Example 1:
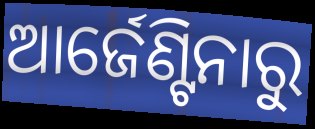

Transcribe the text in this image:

ଆର୍ଜେଣ୍ଟିନାରୁ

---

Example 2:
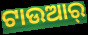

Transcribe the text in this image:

ଟାଉଆର୍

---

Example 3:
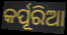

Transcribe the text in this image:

କର୍ପୂରିଆ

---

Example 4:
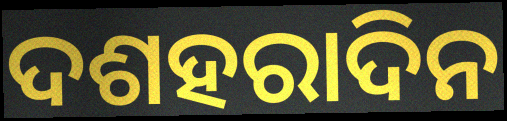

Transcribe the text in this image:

ଦଶହରାଦିନ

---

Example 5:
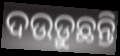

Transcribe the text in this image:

ଦଉଡ଼ୁଛନ୍ତି